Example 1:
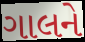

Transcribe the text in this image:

ગાલને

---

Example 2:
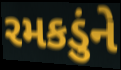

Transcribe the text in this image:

રમકડુંને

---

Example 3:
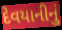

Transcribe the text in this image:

દેવયાનીનું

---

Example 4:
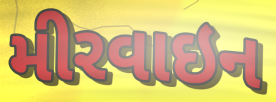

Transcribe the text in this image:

મીરવાઇન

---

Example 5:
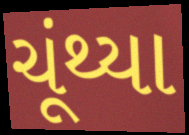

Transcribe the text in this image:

ચૂંથ્યા